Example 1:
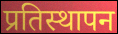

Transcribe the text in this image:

प्रतिस्थापन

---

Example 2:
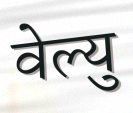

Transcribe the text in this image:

वेल्यु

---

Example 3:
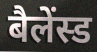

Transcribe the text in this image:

बैलेंस्ड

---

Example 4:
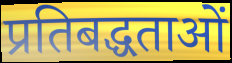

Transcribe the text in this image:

प्रतिबद्धताओं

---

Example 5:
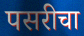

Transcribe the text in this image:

पसरीचा